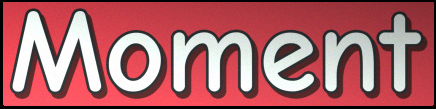
Moment